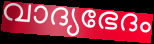
വാദ്യഭേദം